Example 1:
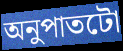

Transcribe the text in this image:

অনুপাতটো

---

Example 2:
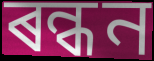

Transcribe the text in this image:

ৰন্ধন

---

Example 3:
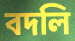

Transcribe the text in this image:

বদলি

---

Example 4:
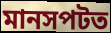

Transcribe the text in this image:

মানসপটত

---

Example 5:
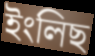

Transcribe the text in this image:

ইংলিছ